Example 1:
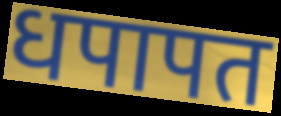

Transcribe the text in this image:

धपापत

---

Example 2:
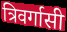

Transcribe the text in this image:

त्रिवर्गासी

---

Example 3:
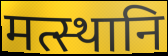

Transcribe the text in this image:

मत्स्थानि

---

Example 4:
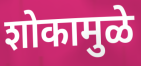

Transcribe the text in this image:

शोकामुळे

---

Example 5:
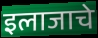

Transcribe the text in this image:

इलाजाचे